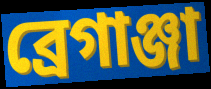
ব্রেগাঞ্জা